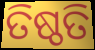
ତିଷ୍ଠତି